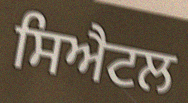
ਸਿਐਟਲ